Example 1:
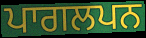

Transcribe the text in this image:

ਪਾਗਲਪਨ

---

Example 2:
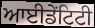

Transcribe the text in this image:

ਆਈਡੇਂਟਿਟੀ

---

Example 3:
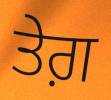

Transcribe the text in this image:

ਤੇਗ਼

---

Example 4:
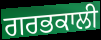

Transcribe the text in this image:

ਗਰਭਕਾਲੀ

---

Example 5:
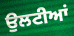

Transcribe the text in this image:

ਉਲਟੀਆਂ